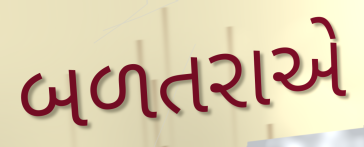
બળતરાએ